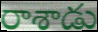
రాశాడు